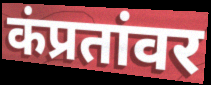
कंप्रतांवर